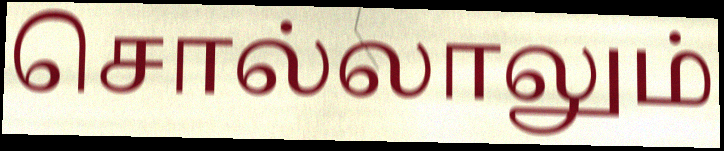
சொல்லாலும்